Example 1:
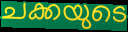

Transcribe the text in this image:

ചക്കയുടെ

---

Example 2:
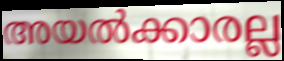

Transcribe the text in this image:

അയൽക്കാരല്ല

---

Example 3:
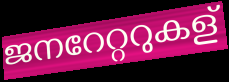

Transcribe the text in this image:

ജനറേറ്ററുകള്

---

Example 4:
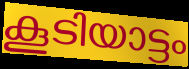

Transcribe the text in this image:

കൂടിയാട്ടം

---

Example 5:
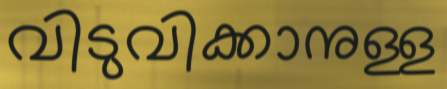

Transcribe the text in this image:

വിടുവിക്കാനുള്ള